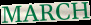
MARCH